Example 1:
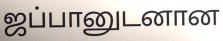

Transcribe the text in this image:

ஜப்பானுடனான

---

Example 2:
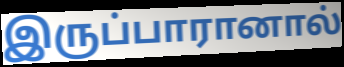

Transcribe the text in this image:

இருப்பாரானால்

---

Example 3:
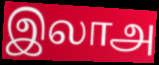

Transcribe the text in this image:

இலாஅ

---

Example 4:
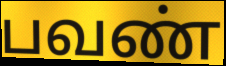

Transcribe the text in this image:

பவண்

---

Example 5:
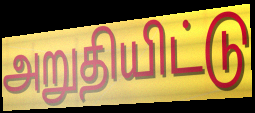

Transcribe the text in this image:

அறுதியிட்டு